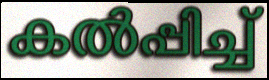
കൽപ്പിച്ച്